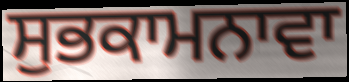
ਸੁਭਕਾਮਨਾਵਾ